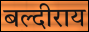
बल्दीराय